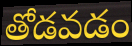
తోడవడం